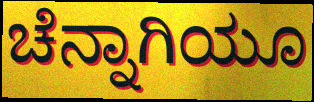
ಚೆನ್ನಾಗಿಯೂ